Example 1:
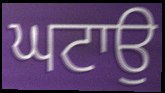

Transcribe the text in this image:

ਘਟਾਉ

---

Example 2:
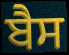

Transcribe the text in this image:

ਬੈਸ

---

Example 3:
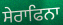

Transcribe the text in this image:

ਸੇਰਾਫਿਨਾ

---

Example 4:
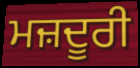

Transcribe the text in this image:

ਮਜ਼ਦੂਰੀ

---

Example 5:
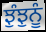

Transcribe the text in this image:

ਝੁੰਝੁਨੂੰ